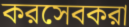
করসেবকরা